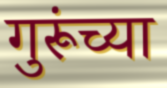
गुरूंच्या